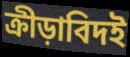
ক্রীড়াবিদই